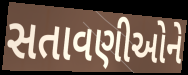
સતાવણીઓને